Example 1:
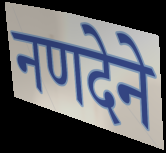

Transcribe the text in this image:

नणदेने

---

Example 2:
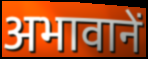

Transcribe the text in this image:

अभावानें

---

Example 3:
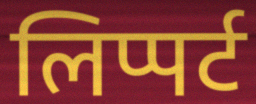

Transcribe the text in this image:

लिप्पर्ट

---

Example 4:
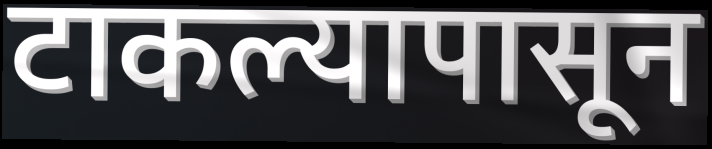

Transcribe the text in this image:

टाकल्यापासून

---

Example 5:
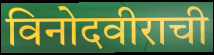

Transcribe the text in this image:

विनोदवीराची